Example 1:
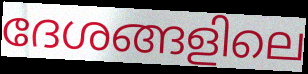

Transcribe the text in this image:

ദേശങ്ങളിലെ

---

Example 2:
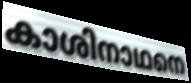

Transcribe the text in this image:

കാശിനാഥനെ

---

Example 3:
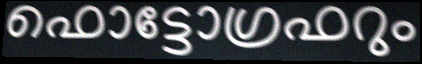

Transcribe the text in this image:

ഫൊട്ടോഗ്രഫറും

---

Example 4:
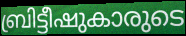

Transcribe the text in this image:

ബ്രിട്ടീഷുകാരുടെ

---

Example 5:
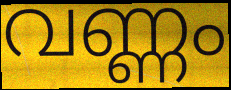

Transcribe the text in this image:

വണ്ണം